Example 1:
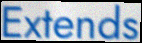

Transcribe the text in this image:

Extends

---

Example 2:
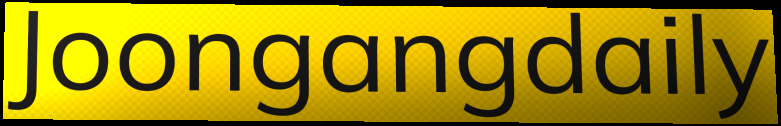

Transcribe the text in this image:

Joongangdaily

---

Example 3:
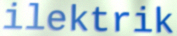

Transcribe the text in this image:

ilektrik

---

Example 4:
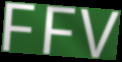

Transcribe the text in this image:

FFV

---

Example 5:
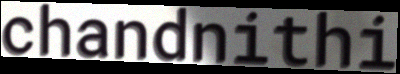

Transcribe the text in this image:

chandnithi